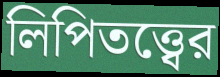
লিপিতত্ত্বের